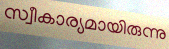
സ്വീകാര്യമായിരുന്നു